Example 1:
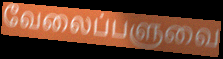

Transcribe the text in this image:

வேலைப்பளுவை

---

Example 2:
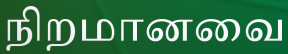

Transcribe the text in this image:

நிறமானவை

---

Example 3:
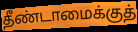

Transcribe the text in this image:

தீண்டாமைக்குத்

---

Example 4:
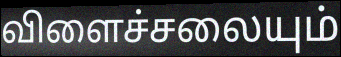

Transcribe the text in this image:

விளைச்சலையும்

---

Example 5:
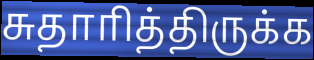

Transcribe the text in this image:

சுதாரித்திருக்க